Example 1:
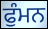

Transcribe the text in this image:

ਫੁੰਮਨ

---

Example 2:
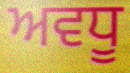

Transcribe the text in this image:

ਅਵਧੂ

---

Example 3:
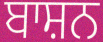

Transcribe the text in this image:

ਬਾਸ਼ਨ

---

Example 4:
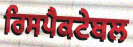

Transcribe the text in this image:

ਰਿਸਪੈਕਟੇਬਲ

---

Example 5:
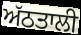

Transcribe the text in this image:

ਅੱਠਤਾਲੀ